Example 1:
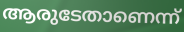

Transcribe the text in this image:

ആരുടേതാണെന്ന്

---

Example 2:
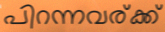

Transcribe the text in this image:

പിറന്നവര്ക്ക്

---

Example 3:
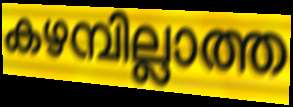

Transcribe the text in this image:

കഴമ്പില്ലാത്ത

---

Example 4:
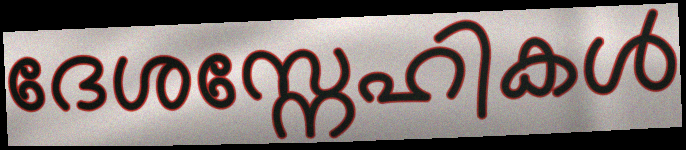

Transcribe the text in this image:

ദേശസ്നേഹികൾ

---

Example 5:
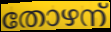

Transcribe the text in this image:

തോഴന്